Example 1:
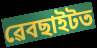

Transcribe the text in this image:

ৱেবছাইটত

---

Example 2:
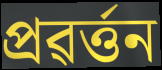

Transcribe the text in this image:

প্ৰৱৰ্ত্তন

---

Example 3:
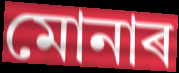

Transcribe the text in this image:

মোনাৰ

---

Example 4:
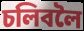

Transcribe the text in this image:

চলিবলৈ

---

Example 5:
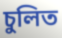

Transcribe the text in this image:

চুলিত